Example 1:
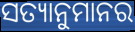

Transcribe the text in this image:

ସତ୍ୟାନୁମାନର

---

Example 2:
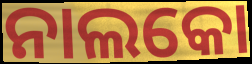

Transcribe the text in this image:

ନାଲକୋ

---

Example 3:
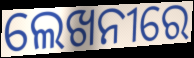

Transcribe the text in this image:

ଲେଖନୀରେ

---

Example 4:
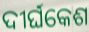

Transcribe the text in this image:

ଦୀର୍ଘକେଶ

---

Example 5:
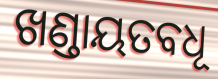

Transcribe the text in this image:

ଖଣ୍ଡାୟତବଧୂ